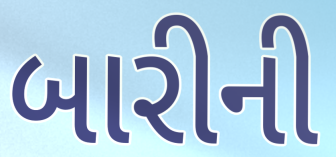
બારીની